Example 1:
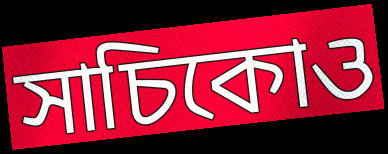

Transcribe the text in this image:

সাচিকোও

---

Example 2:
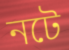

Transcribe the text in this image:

নটে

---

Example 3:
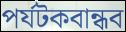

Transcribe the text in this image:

পর্যটকবান্ধব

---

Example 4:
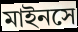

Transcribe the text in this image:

মাইনসে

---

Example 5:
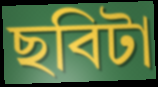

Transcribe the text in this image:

ছবিটা